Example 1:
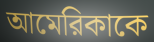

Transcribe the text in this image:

আমেরিকাকে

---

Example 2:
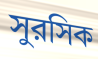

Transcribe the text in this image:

সুরসিক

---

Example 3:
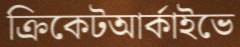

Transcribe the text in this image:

ক্রিকেটআর্কাইভে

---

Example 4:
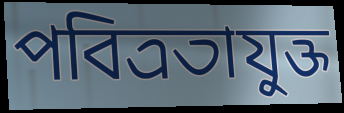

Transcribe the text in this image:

পবিত্রতাযুক্ত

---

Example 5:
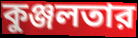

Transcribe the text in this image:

কুঞ্জলতার